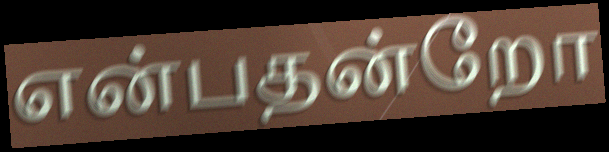
என்பதன்றோ